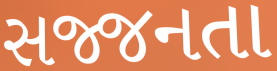
સજ્જનતા